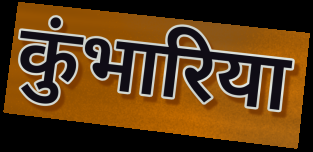
कुंभारिया